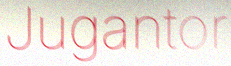
Jugantor